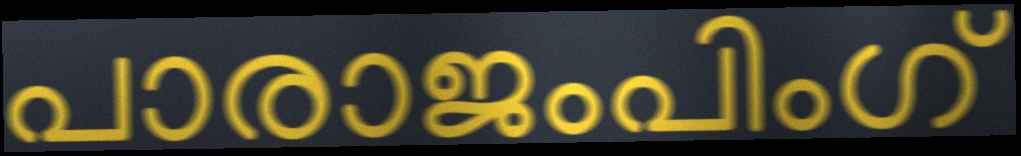
പാരാജംപിംഗ്